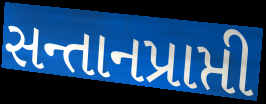
સન્તાનપ્રાપ્તી